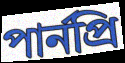
পার্নপ্রি